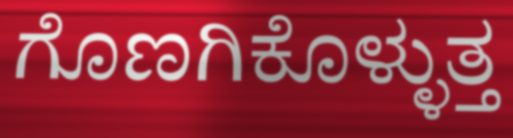
ಗೊಣಗಿಕೊಳ್ಳುತ್ತ